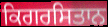
ਕਿਗਰਸਿਤਾਨ